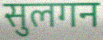
सुलगन